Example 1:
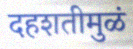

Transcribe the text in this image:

दहशतीमुळं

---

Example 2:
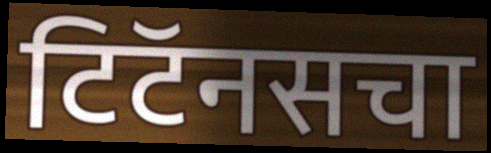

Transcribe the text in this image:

टिटॅनसचा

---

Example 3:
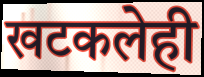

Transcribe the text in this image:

खटकलेही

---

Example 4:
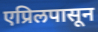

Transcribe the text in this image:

एप्रिलपासून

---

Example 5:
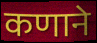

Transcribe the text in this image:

कणाने